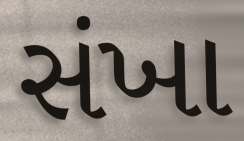
સંખા